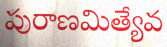
పురాణమిత్యేవ